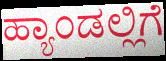
ಹ್ಯಾಂಡಲ್ಲಿಗೆ